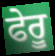
ਫੇਰੂ